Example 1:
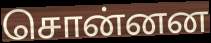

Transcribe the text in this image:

சொன்னன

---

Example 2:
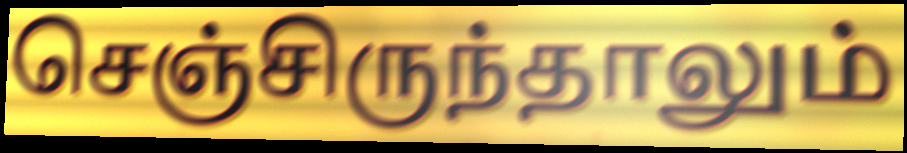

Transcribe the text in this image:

செஞ்சிருந்தாலும்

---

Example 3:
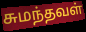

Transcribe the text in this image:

சுமந்தவள்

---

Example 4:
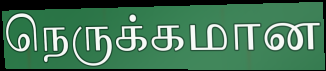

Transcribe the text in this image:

நெருக்கமான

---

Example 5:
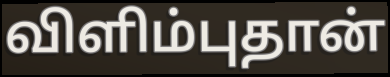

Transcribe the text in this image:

விளிம்புதான்